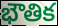
భౌతిక